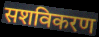
सशविकरण